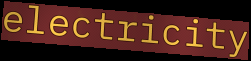
electricity